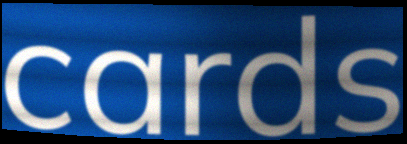
cards